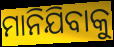
ମାନିଯିବାକୁ